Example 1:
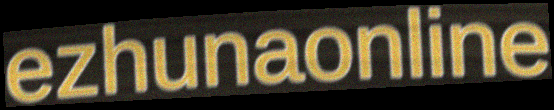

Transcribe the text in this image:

ezhunaonline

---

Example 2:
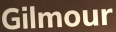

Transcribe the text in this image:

Gilmour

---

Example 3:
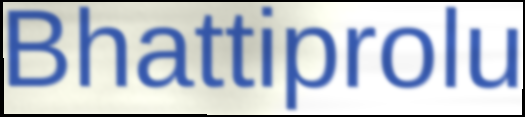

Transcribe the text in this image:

Bhattiprolu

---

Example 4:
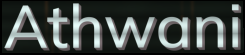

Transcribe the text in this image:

Athwani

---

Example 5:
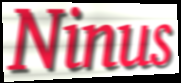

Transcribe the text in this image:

Ninus